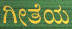
ಗೀತೆಯ